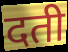
दती